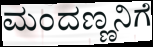
ಮಂದಣ್ಣನಿಗೆ